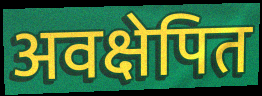
अवक्षेपित